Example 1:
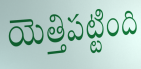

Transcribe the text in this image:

యెత్తిపట్టింది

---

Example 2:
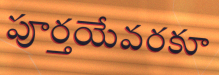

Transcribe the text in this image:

పూర్తయేవరకూ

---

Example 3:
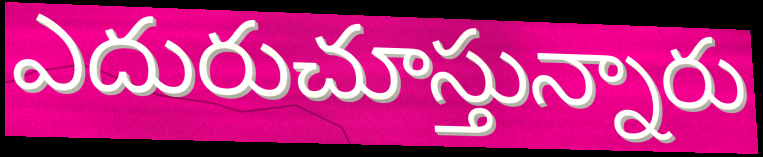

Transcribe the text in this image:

ఎదురుచూస్తున్నారు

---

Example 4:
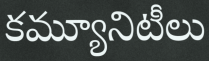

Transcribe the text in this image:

కమ్యూనిటీలు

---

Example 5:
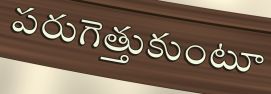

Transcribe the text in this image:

పరుగెత్తుకుంటూ